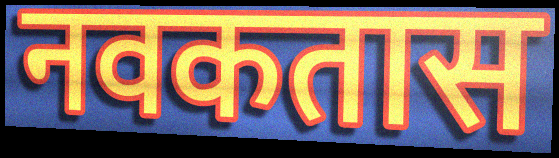
नवकतास